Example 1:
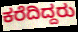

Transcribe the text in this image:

ಕರೆದಿದ್ದರು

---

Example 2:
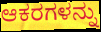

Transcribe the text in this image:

ಆಕರಗಳನ್ನು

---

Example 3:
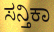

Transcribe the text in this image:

ಸನ್ತಿಕಾ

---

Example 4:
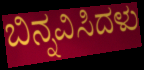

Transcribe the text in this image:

ಬಿನ್ನವಿಸಿದಳು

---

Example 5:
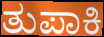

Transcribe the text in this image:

ತುಪಾಕಿ